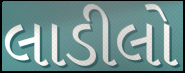
લાડીલો